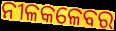
ନୀଳକଳେବର